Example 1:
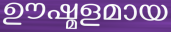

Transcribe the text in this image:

ഊഷ്മളമായ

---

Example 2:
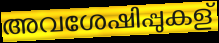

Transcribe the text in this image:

അവശേഷിപ്പുകള്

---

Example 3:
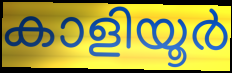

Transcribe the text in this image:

കാളിയൂർ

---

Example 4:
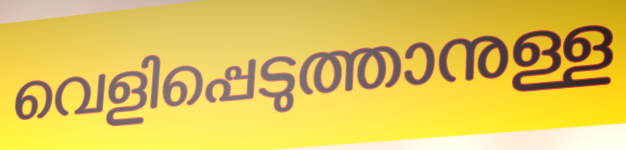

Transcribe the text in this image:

വെളിപ്പെടുത്താനുള്ള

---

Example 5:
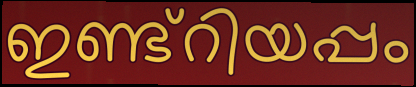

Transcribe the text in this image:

ഇണ്ട്റിയപ്പം